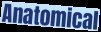
Anatomical